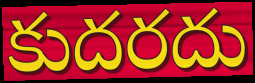
కుదరదు